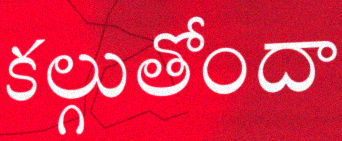
కల్గుతోందా